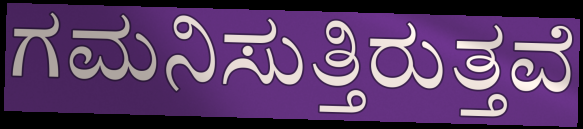
ಗಮನಿಸುತ್ತಿರುತ್ತವೆ